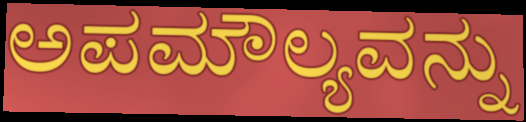
ಅಪಮೌಲ್ಯವನ್ನು